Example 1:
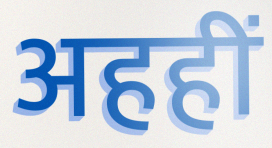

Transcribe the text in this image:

अहहीं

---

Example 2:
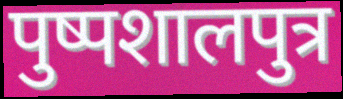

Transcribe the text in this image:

पुष्पशालपुत्र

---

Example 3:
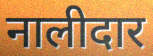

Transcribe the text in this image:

नालीदार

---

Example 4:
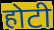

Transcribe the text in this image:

होटी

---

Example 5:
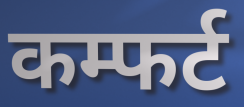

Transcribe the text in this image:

कम्फर्ट